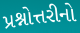
પ્રશ્નોત્તરીનો